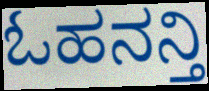
ಓಹನನ್ತಿ